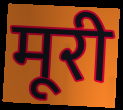
मूरी